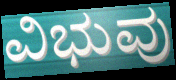
ವಿಭುವು